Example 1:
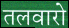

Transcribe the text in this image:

तलवारो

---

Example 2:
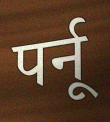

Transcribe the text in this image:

पर्नू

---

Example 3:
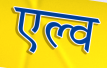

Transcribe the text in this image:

एल्व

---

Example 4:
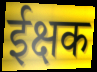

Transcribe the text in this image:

ईक्षक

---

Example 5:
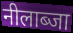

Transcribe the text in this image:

नीलाब्जा